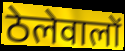
ठेलेवालों